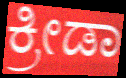
ಕ್ರೀಡಾ